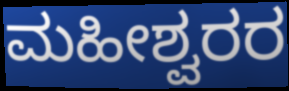
ಮಹೀಶ್ವರರ